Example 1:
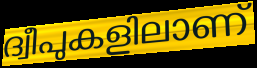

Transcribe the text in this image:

ദ്വീപുകളിലാണ്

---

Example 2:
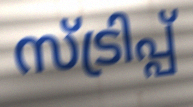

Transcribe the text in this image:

സ്ട്രിപ്പ്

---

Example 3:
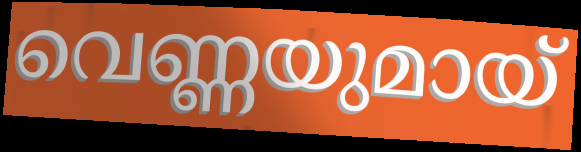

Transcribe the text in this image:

വെണ്ണയുമായ്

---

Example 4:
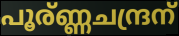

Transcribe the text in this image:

പൂര്ണ്ണചന്ദ്രന്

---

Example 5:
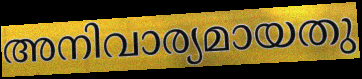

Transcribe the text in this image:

അനിവാര്യമായതു